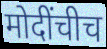
मोदींचीच